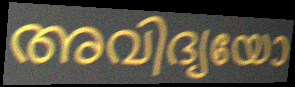
അവിദ്യയോ